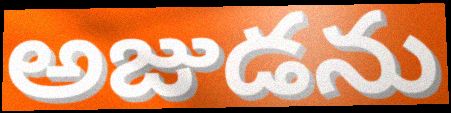
అజుడను